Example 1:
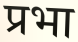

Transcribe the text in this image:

प्रभा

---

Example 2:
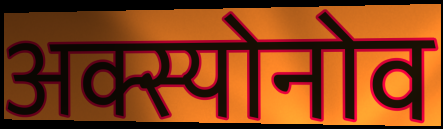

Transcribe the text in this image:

अक्स्योनोव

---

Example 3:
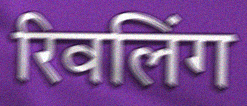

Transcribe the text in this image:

रिवलिंग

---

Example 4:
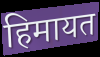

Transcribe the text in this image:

हिमायत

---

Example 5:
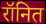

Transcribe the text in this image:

रॉनित